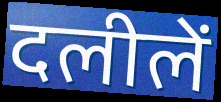
दलीलें